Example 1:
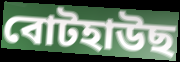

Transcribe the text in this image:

বোটহাউছ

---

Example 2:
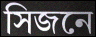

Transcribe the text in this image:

সিজনে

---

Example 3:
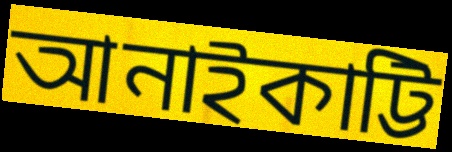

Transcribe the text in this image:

আনাইকাট্টি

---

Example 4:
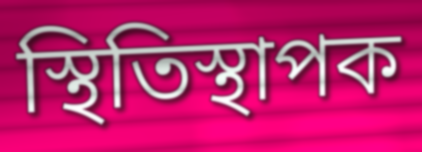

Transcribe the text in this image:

স্থিতিস্থাপক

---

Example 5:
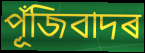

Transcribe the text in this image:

পূঁজিবাদৰ